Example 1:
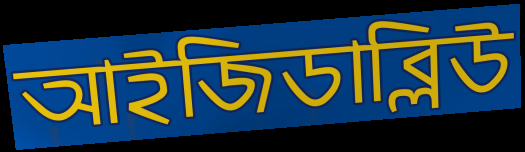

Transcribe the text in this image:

আইজিডাব্লিউ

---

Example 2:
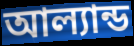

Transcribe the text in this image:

আল্যান্ড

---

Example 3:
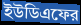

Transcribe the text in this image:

ইউডিএফের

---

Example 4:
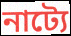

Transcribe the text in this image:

নাট্যে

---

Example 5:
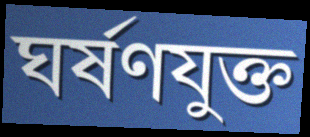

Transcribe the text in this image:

ঘর্ষণযুক্ত